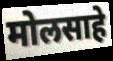
मोलसाहे